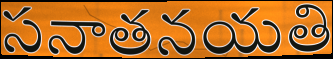
సనాతనయతి